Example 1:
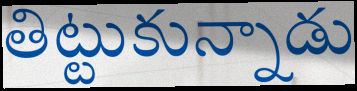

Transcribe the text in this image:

తిట్టుకున్నాడు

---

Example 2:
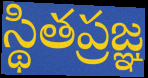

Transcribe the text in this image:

స్థితప్రజ్ఞ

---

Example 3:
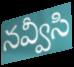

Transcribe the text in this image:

నవ్వీసి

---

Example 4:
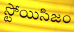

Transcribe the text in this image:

స్టోయిసిజం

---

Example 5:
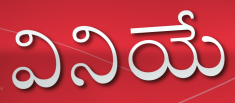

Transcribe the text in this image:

వినియే